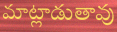
మాట్లాడుతావు